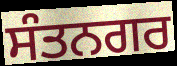
ਸੰਤਨਗਰ